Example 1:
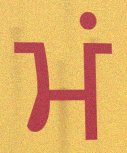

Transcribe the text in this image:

ਮਂ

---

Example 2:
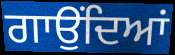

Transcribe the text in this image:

ਗਾਉਂਦਿਆਂ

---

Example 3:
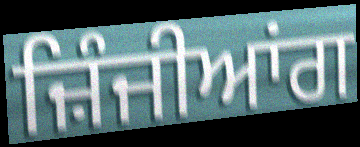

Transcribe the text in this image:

ਜ਼ਿੰਜੀਆਂਗ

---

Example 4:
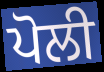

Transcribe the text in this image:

ਪੋਲੀ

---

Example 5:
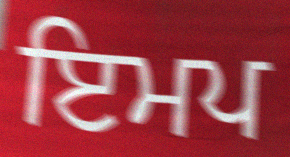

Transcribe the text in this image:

ਇਮਪ